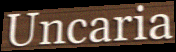
Uncaria